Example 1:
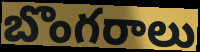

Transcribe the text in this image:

బొంగరాలు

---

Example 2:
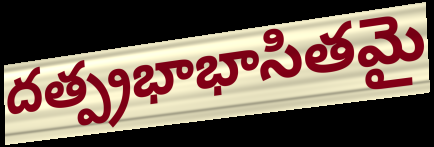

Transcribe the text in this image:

దత్ప్రభాభాసితమై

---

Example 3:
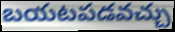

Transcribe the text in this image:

బయటపడవచ్చు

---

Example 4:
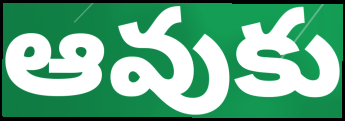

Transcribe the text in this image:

ఆవుకు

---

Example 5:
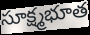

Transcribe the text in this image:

సూక్ష్మభూత